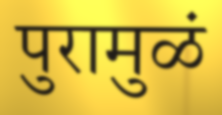
पुरामुळं